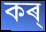
কৰ্